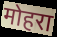
मोहरा